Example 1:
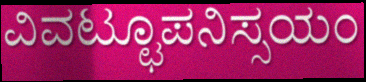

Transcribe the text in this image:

ವಿವಟ್ಟೂಪನಿಸ್ಸಯಂ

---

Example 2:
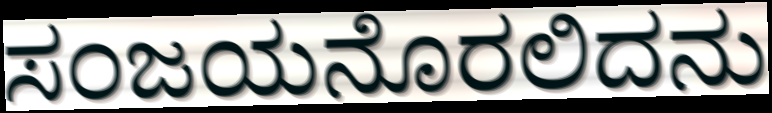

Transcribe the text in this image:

ಸಂಜಯನೊರಲಿದನು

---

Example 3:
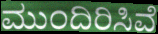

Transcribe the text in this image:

ಮುಂದಿರಿಸಿವೆ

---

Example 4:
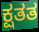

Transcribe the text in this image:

ಕ್ಷತತ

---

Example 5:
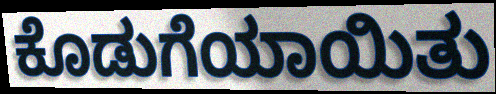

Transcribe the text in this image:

ಕೊಡುಗೆಯಾಯಿತು